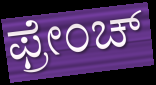
ಫ್ರೇಂಚ್